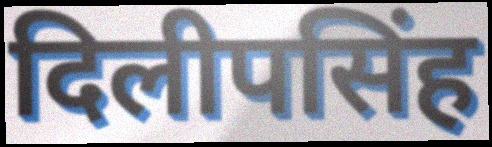
दिलीपसिंह